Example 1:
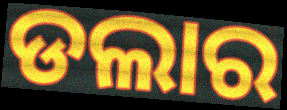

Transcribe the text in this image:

ଡଲାର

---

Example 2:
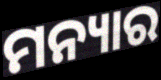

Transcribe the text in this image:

ମନ୍ୟାର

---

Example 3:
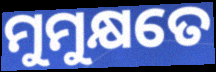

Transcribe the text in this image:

ମୁମୁକ୍ଷତେ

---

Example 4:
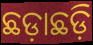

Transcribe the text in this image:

ଛଡ଼ାଛଡ଼ି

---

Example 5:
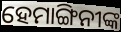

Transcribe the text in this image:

ହେମାଙ୍ଗିନୀଙ୍କ